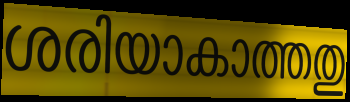
ശരിയാകാത്തതു